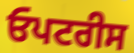
ਓਪਟਰੀਸ